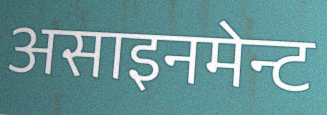
असाइनमेन्ट